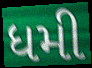
ધમી